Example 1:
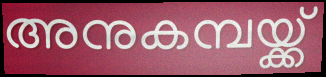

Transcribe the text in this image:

അനുകമ്പയ്ക്ക്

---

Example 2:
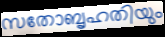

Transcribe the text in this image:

സതോബൃഹതിയും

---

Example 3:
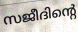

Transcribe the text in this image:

സജീദിന്റെ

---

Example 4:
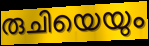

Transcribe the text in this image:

രുചിയെയും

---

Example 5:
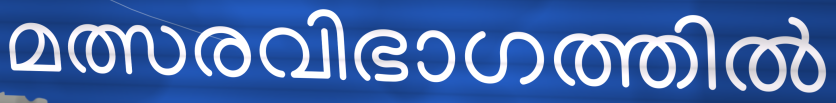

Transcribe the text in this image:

മത്സരവിഭാഗത്തിൽ